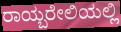
ರಾಯ್ಬರೇಲಿಯಲ್ಲಿ